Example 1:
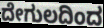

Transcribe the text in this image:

ದೇಗುಲದಿಂದ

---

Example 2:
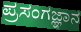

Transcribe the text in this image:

ಪ್ರಸಂಗಜ್ಞಾನ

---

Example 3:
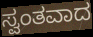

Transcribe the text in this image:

ಸ್ವಂತವಾದ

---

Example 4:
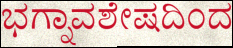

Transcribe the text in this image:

ಭಗ್ನಾವಶೇಷದಿಂದ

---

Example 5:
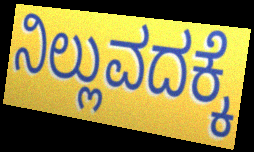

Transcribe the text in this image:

ನಿಲ್ಲುವದಕ್ಕೆ